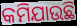
କମିଯାଉଛି